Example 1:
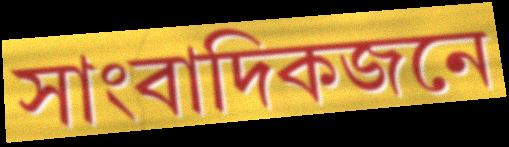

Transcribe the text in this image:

সাংবাদিকজনে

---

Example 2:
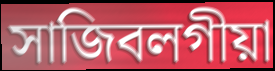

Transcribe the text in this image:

সাজিবলগীয়া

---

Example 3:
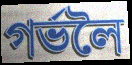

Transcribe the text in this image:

গৰ্ভলৈ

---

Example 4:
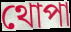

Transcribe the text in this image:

থোপা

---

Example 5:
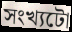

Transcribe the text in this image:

সংখ্যটো